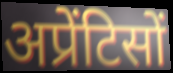
अप्रेंटिसों